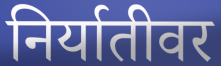
निर्यातीवर